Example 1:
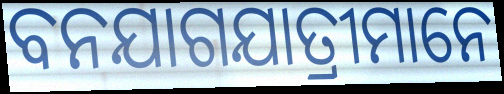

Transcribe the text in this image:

ବନଯାଗଯାତ୍ରୀମାନେ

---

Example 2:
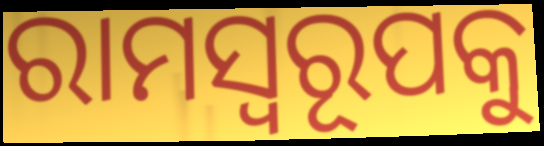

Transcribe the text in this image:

ରାମସ୍ୱରୂପକୁ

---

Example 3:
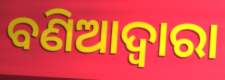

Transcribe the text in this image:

ବଣିଆଦ୍ୱାରା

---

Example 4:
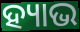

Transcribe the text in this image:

ହ୍ୟାଭ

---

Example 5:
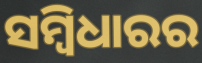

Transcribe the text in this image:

ସମ୍ବିଧାରର